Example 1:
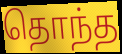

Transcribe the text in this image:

தொந்த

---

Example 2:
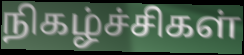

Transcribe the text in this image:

நிகழ்ச்சிகள்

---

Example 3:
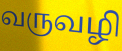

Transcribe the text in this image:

வருவழி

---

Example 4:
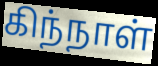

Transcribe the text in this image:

கிந்நாள்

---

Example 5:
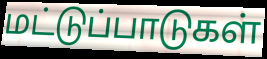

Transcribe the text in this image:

மட்டுப்பாடுகள்